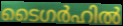
ടൈഗർഹിൽ